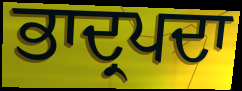
ਭਾਦ੍ਰਪਦਾ